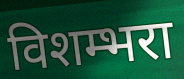
विशम्भरा